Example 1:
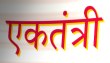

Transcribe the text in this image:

एकतंत्री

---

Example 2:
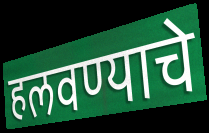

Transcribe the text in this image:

हलवण्याचे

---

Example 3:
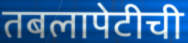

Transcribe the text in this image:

तबलापेटीची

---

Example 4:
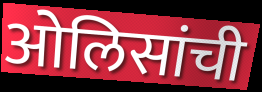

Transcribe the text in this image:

ओलिसांची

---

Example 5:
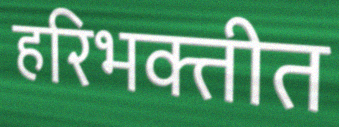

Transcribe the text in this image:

हरिभक्तीत